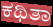
ಕಥಿತಾ